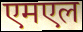
एमएल